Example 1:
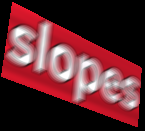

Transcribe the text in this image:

slopes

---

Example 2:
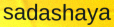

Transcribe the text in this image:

sadashaya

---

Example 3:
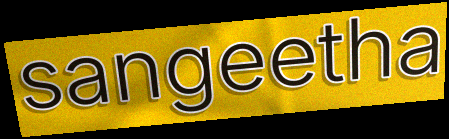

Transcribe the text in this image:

sangeetha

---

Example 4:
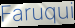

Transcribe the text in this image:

Faruqui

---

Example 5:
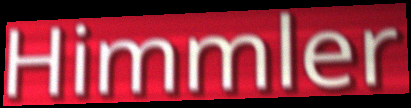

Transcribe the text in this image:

Himmler